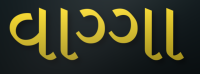
વાગ્ગા